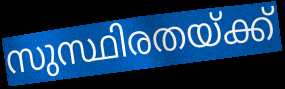
സുസ്ഥിരതയ്ക്ക്